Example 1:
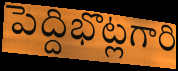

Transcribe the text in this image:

పెద్దిభొట్లగారి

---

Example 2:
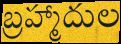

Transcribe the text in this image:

బ్రహ్మాదుల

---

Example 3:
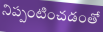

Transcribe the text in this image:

నిప్పంటించడంతో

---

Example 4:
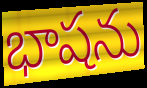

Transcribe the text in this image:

భాషను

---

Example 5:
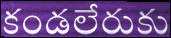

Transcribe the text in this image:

కండలేరుకు